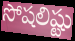
సోషలిష్టు